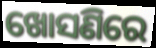
ଖୋସଣିରେ